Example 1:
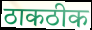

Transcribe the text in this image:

ठाकठीक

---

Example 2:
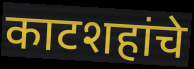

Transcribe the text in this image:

काटशहांचे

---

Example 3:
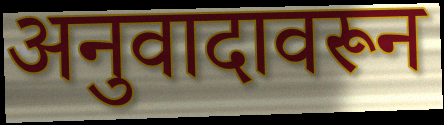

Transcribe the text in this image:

अनुवादावरून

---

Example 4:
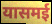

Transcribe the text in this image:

यासमई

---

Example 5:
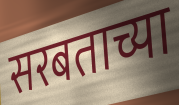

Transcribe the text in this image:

सरबताच्या